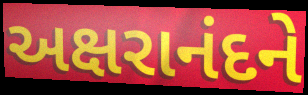
અક્ષરાનંદને